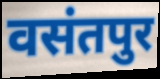
वसंतपुर